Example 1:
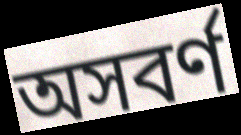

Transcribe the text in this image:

অসবর্ণ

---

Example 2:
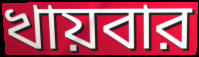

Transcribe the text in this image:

খায়বার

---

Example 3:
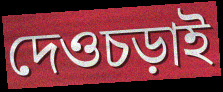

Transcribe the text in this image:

দেওচড়াই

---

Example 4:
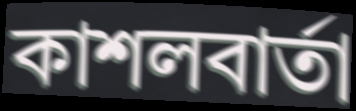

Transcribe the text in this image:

কাশলবার্তা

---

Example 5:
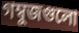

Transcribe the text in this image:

গম্বুজগুলো